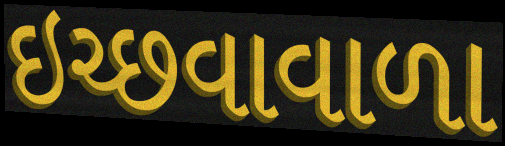
ઇચ્છવાવાળા